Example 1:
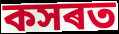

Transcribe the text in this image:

কসৰত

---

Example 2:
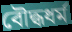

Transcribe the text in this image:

বৌদ্ধধৰ্ম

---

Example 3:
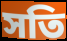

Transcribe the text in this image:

সতি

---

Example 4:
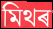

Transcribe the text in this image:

মিথৰ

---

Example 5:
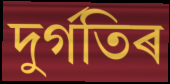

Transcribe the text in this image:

দুৰ্গতিৰ